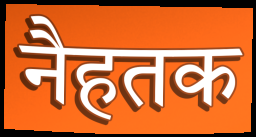
नैहतक